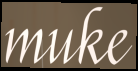
muke